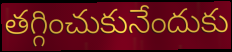
తగ్గించుకునేందుకు